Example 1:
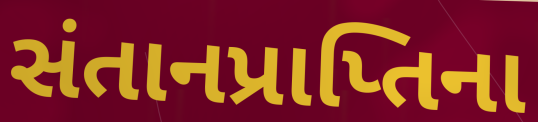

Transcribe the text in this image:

સંતાનપ્રાપ્તિના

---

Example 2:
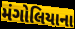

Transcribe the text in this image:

મંગોલિયાના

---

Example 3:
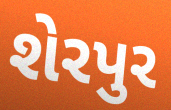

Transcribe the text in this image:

શેરપુર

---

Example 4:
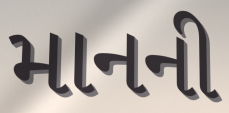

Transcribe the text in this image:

માનની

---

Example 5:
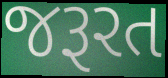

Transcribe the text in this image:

જરૂરત